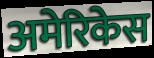
अमेरिकेस